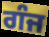
ਗੰਜ